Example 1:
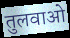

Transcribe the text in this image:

तुलवाओ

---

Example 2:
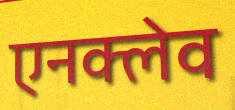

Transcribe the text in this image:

एनक्लेव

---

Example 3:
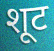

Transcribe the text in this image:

शूट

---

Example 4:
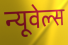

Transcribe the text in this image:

न्यूवेल्स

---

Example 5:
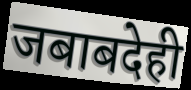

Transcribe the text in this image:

जबाबदेही